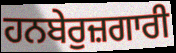
ਹਨਬੇਰੁਜ਼ਗਾਰੀ